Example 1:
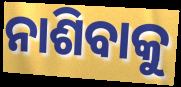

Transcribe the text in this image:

ନାଶିବାକୁ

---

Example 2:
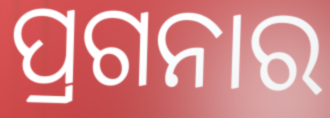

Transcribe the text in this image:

ପ୍ରଗନାର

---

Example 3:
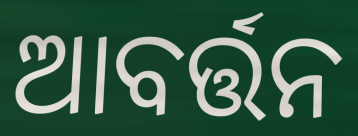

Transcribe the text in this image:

ଆବର୍ତ୍ତନ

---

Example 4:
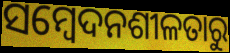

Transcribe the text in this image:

ସମ୍ବେଦନଶୀଳତାରୁ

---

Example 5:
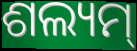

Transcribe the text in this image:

ଶଲ୍ୟମ୍